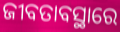
ଜୀବତାବସ୍ଥାରେ